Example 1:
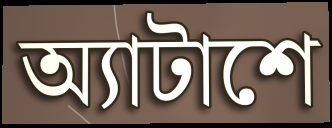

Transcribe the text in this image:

অ্যাটাশে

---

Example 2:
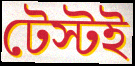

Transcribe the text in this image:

টেস্টই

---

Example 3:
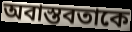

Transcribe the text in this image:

অবাস্তবতাকে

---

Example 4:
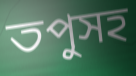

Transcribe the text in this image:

তপুসহ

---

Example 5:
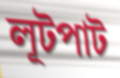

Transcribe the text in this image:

লূটপাট